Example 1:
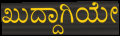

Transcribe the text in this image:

ಖುದ್ದಾಗಿಯೇ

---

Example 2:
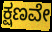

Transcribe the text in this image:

ಕ್ಷಣವೇ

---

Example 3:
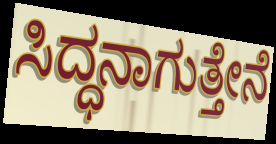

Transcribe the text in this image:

ಸಿದ್ಧನಾಗುತ್ತೇನೆ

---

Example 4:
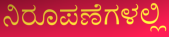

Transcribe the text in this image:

ನಿರೂಪಣೆಗಳಲ್ಲಿ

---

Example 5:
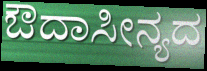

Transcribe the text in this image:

ಔದಾಸೀನ್ಯದ